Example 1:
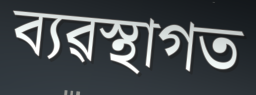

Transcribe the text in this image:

ব্যৱস্থাগত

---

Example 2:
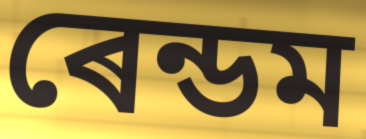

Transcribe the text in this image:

ৰেন্ডম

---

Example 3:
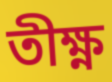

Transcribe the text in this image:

তীক্ষ্ণ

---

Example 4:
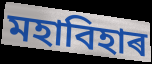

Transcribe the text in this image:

মহাবিহাৰ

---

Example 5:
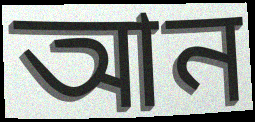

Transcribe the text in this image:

আন